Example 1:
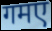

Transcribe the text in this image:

गमए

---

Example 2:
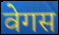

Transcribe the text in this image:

वेगस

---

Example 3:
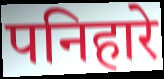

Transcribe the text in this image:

पनिहारे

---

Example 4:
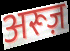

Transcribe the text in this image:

अरूज़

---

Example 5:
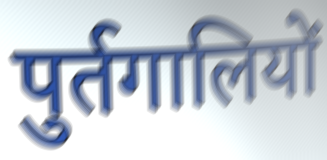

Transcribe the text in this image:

पुर्तगालियों